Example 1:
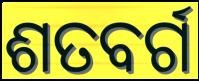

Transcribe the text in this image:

ଶତବର୍ଗ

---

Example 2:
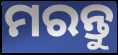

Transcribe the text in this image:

ମରନ୍ତୁ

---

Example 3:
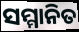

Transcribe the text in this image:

ସମ୍ମାନିତ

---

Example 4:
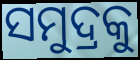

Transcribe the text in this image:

ସମୁଦ୍ରକୁ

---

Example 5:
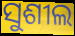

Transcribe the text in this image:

ସୁଶୀଲ